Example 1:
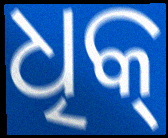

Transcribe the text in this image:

ଧିକ୍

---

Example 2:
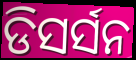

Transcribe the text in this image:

ଡିସର୍ସନ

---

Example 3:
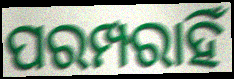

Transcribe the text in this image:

ପରମ୍ପରାହିଁ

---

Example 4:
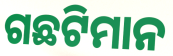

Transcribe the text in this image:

ଗଛଟିମାନ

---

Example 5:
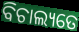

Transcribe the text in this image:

ବିଚାଲ୍ୟତେ